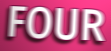
FOUR